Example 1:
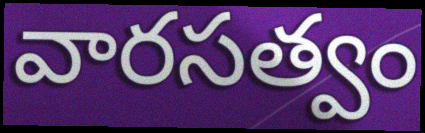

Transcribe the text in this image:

వారసత్వం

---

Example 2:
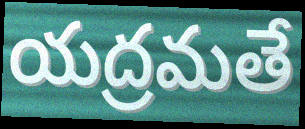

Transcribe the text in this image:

యద్రమతే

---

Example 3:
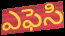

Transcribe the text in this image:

ఎఫెసి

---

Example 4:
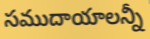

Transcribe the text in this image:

సముదాయాలన్నీ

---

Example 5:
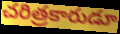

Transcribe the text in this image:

చరిత్రకారుడూ